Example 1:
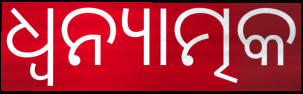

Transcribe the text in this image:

ଧ୍ୱନ୍ୟାତ୍ମକ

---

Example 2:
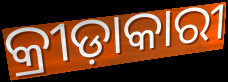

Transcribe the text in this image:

କ୍ରୀଡ଼ାକାରୀ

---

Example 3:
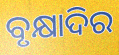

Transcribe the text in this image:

ବୃକ୍ଷାଦିର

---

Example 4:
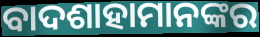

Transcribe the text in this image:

ବାଦଶାହାମାନଙ୍କର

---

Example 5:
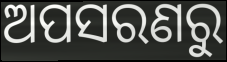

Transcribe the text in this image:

ଅପସରଣରୁ